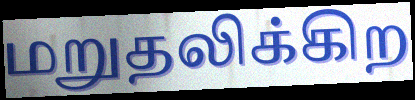
மறுதலிக்கிற